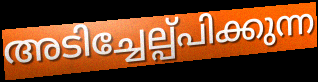
അടിച്ചേല്പ്പിക്കുന്ന